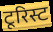
टूरिस्ट